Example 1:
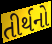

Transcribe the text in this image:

તીર્થનો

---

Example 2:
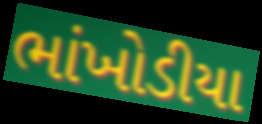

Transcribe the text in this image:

ભાંખોડીયા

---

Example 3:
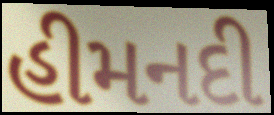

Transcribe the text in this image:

હીમનદી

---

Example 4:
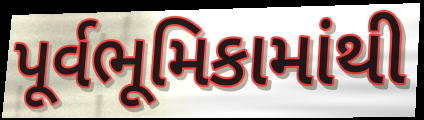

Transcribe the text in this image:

પૂર્વભૂમિકામાંથી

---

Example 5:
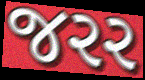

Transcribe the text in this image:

જરર